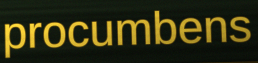
procumbens